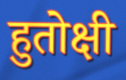
हुतोक्षी